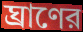
ঘ্রাণের